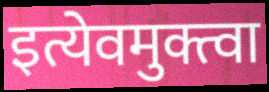
इत्येवमुक्त्वा